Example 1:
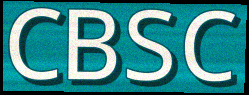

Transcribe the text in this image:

CBSC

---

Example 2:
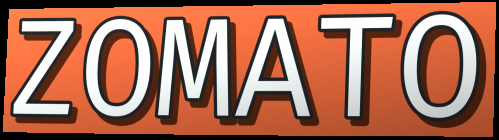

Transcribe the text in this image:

ZOMATO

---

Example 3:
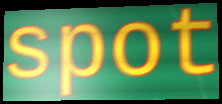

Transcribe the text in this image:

spot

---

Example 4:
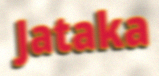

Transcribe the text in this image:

Jataka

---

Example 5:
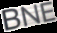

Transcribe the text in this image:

BNE